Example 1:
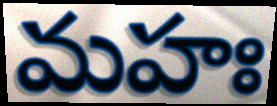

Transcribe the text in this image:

మహః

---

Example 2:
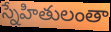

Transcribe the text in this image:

స్నేహితులంతా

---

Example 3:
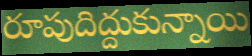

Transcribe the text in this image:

రూపుదిద్దుకున్నాయి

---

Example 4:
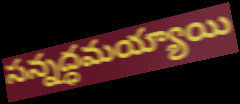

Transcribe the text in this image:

సన్నద్ధమయ్యాయి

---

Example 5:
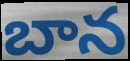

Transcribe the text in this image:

బాన